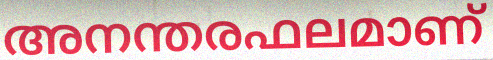
അനന്തരഫലമാണ്